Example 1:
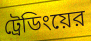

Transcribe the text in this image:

ট্রেডিংয়ের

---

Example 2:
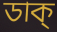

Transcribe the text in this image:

ডাক্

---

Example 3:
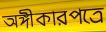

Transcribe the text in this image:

অঙ্গীকারপত্রে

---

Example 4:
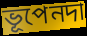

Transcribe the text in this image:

ভূপেনদা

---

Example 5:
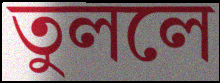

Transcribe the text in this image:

তুললে